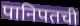
पानिपतची